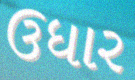
ઉધાર